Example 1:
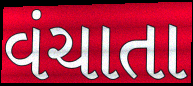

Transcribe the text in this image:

વંચાતા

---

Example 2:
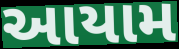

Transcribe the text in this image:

આયામ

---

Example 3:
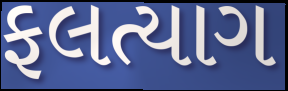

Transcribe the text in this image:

ફલત્યાગ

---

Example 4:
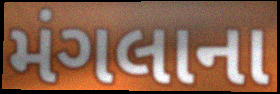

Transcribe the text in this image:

મંગલાના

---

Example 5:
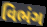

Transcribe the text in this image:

વિભંગ